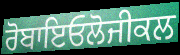
ਰੋਬਾਇਓਲੋਜੀਕਲ